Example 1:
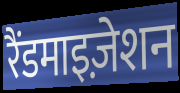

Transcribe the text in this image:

रैंडमाइज़ेशन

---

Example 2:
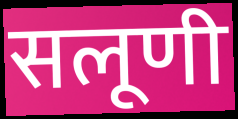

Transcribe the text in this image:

सलूणी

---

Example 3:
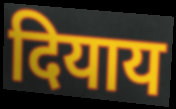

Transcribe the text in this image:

दियाय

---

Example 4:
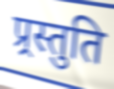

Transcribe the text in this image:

प्र्रस्तुति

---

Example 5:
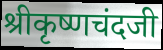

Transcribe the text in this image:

श्रीकृष्णचंदजी